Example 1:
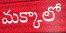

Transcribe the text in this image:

మక్కాలో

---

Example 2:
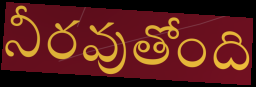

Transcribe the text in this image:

నీరవుతోంది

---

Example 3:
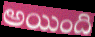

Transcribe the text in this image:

అయింది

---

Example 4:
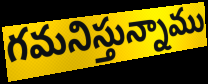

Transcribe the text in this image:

గమనిస్తున్నాము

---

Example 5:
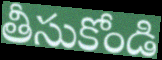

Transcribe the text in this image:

తీసుకోండి